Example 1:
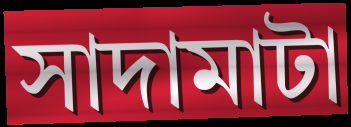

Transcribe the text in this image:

সাদামাটা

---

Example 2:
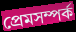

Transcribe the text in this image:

প্রেমসম্পর্ক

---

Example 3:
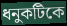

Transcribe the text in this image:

ধনুকটিকে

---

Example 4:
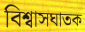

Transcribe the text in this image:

বিশ্বাসঘাতক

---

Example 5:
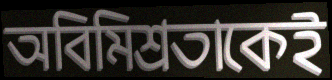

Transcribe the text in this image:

অবিমিশ্রতাকেই